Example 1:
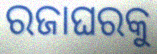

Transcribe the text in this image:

ରଜାଘରକୁ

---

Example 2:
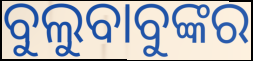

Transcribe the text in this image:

ବୁଲୁବାବୁଙ୍କର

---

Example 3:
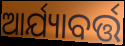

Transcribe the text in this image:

ଆର୍ଯ୍ୟାବର୍ତ୍ତ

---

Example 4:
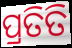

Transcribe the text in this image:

ପ୍ରତିତି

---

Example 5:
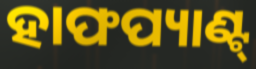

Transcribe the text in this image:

ହାଫପ୍ୟାଣ୍ଟ୍